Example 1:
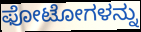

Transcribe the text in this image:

ಫೋಟೋಗಳನ್ನು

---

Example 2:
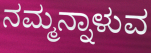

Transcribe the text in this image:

ನಮ್ಮನ್ನಾಳುವ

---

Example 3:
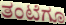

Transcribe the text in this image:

ತಂಟೆಗೂ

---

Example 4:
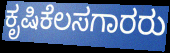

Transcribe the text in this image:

ಕೃಷಿಕೆಲಸಗಾರರು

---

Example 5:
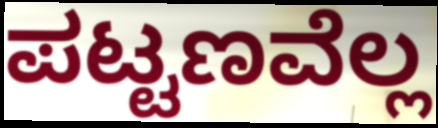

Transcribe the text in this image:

ಪಟ್ಟಣವೆಲ್ಲ